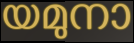
യമുനാ